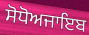
ਸੋਧੋਅਜਾਇਬ